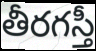
తీరగస్తీ